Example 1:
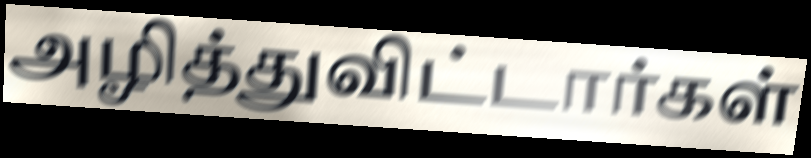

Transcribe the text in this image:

அழித்துவிட்டார்கள்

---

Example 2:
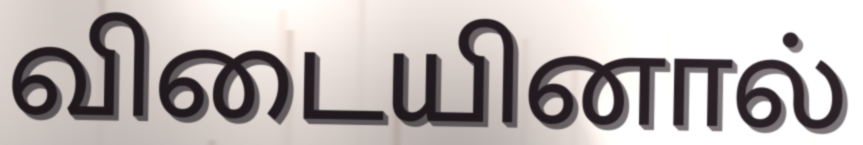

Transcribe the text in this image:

விடையினால்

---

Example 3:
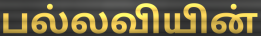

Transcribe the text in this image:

பல்லவியின்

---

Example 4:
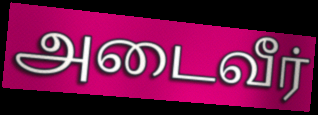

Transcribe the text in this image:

அடைவீர்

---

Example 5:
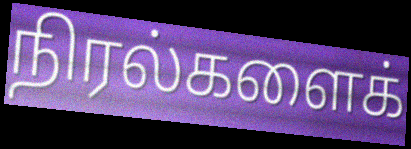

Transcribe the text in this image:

நிரல்களைக்